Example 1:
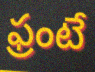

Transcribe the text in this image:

ఫ్రంటే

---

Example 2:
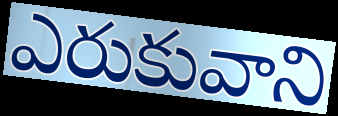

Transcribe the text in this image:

ఎరుకువాని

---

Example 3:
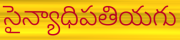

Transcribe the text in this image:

సైన్యాధిపతియగు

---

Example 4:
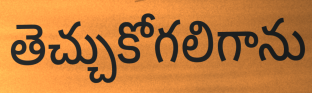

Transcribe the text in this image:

తెచ్చుకోగలిగాను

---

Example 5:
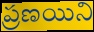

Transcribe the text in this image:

ప్రణయిని